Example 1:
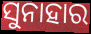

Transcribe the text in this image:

ସୁନାହାର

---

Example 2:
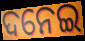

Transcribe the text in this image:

ଦନେଇ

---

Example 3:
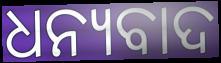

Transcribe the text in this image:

ଧନ୍ୟବାଦ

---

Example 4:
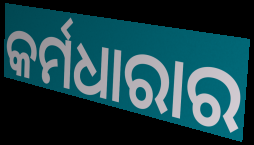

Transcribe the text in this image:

କର୍ମଧାରାର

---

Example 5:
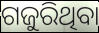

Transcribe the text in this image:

ଗଜୁରିଥିବା